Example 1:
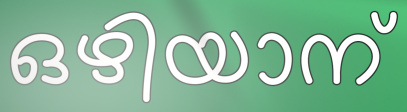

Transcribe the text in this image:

ഒഴിയാന്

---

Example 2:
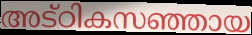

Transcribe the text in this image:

അട്ഠികസഞ്ഞായ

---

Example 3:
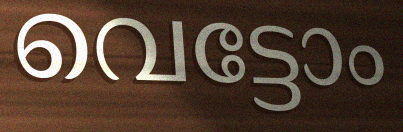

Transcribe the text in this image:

വെട്ടോം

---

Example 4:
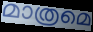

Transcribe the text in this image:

മാത്രമെ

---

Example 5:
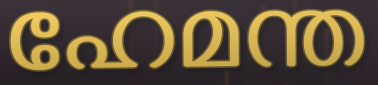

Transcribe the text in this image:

ഹേമന്ത